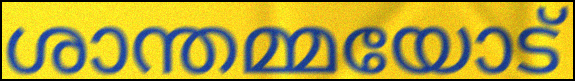
ശാന്തമ്മയോട്